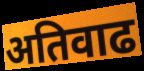
अतिवाढ